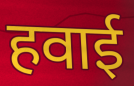
हवाई